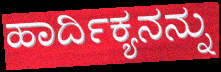
ಹಾರ್ದಿಕ್ಯನನ್ನು